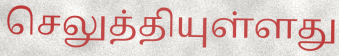
செலுத்தியுள்ளது